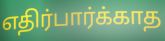
எதிர்பார்க்காத